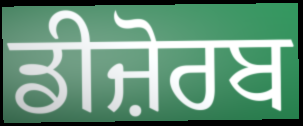
ਡੀਜ਼ੋਰਬ